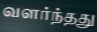
வளர்ந்தது